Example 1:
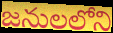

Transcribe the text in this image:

జనులలోని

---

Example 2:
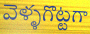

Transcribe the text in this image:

వెళ్ళగొట్టగా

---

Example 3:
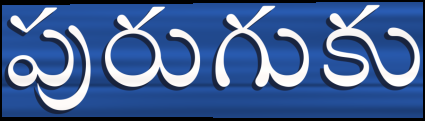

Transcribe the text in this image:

పురుగుకు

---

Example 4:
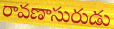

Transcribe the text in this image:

రావణాసురుడు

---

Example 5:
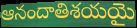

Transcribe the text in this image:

ఆనందాతిశయయై